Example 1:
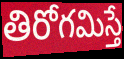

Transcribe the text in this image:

తిరోగమిస్తే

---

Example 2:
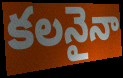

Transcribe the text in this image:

కలనైనా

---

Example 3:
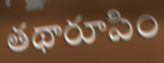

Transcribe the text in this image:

తథారూపిం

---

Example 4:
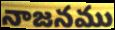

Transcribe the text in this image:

నాజనము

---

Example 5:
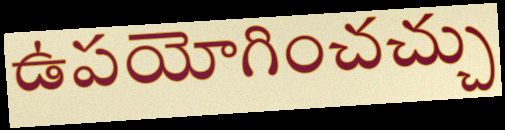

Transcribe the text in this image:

ఉపయోగించచ్చు